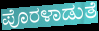
ಪೊರಳಾಡುತೆ